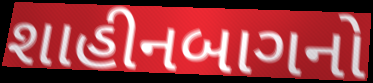
શાહીનબાગનો